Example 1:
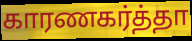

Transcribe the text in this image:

காரணகர்த்தா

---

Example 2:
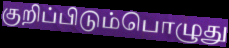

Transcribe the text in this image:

குறிப்பிடும்பொழுது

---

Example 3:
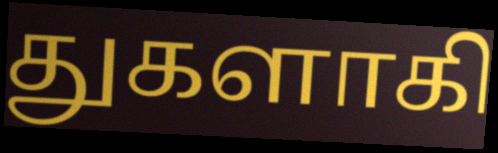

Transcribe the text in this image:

துகளாகி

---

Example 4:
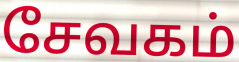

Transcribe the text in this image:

சேவகம்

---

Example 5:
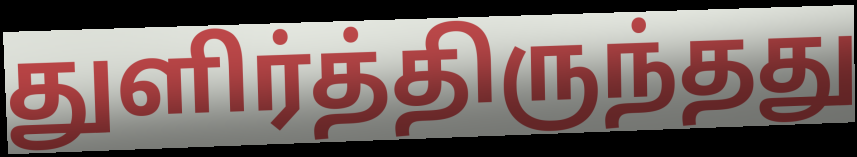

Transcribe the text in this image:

துளிர்த்திருந்தது